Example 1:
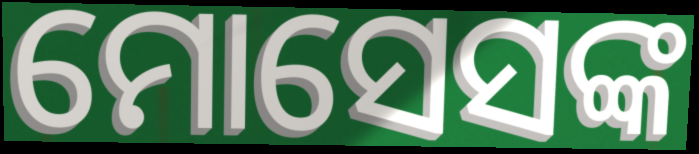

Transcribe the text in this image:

ମୋସେସଙ୍କ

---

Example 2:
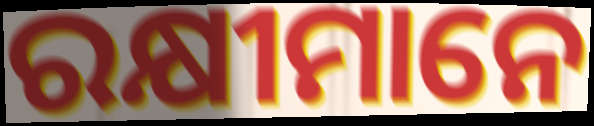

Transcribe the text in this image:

ରକ୍ଷୀମାନେ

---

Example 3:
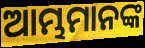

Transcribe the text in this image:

ଆମ୍ଭମାନଙ୍କ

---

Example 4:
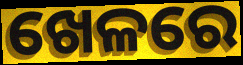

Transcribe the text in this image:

ଖେଳରେ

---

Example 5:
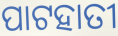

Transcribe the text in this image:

ପାଟହାତୀ